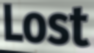
Lost